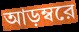
আড়ম্বরে